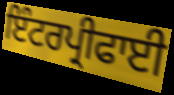
ਇੰਟਰਪ੍ਰੀਫਾਈ